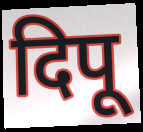
दिपू